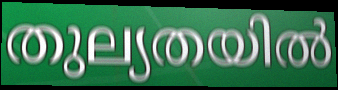
തുല്യതയിൽ